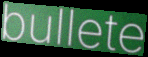
bullete